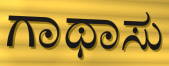
ಗಾಥಾಸು